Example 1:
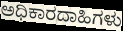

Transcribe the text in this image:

ಅಧಿಕಾರದಾಹಿಗಳು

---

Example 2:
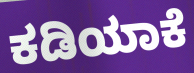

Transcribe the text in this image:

ಕಡಿಯಾಕೆ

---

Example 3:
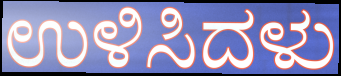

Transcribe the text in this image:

ಉಳಿಸಿದಳು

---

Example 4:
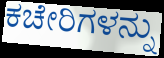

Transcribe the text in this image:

ಕಚೇರಿಗಳನ್ನು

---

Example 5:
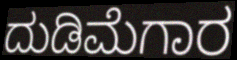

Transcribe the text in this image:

ದುಡಿಮೆಗಾರ